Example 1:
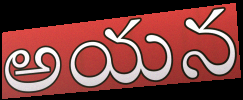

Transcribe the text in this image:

అయన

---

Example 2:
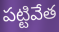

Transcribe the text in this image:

పట్టివేత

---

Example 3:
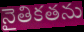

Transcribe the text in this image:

నైతికతను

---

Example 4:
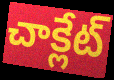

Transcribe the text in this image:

చాక్లేట్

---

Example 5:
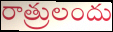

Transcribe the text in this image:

రాత్రులందు